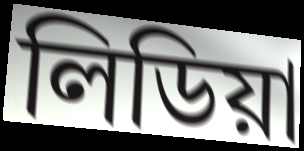
লিডিয়া